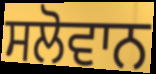
ਸਲੋਵਾਨ